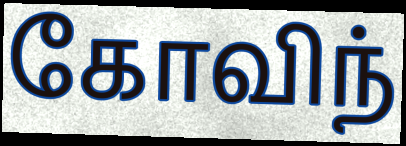
கோவிந்